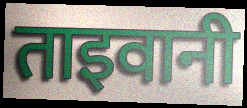
ताइवानी